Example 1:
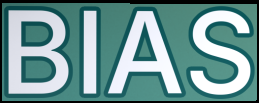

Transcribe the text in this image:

BIAS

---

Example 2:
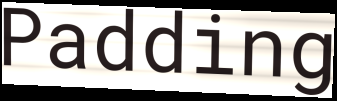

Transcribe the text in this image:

Padding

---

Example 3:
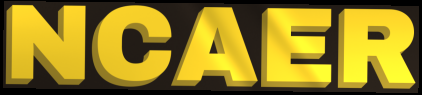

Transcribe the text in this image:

NCAER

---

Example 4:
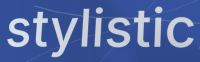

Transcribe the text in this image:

stylistic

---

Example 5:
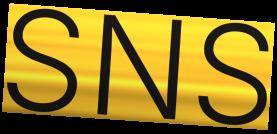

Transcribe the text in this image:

SNS